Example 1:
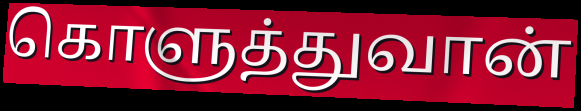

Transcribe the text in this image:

கொளுத்துவான்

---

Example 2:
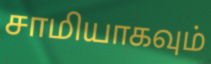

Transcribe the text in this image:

சாமியாகவும்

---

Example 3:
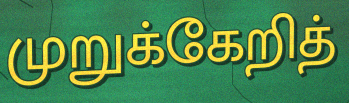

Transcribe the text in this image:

முறுக்கேறித்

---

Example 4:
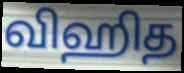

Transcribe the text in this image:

விஹித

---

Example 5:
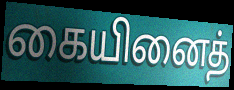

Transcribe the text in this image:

கையினைத்